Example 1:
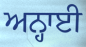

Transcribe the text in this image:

ਅਨ੍ਹਾਈ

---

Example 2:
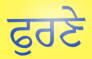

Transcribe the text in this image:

ਫੁਰਣੇ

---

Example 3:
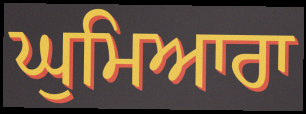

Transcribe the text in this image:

ਘੁਮਿਆਰਾ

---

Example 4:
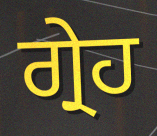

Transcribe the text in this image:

ਗ੍ਰੇਹ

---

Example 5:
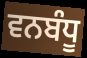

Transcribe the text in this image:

ਵਨਬੰਧੂ